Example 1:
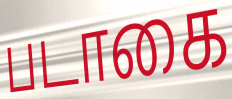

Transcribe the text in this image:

படாகை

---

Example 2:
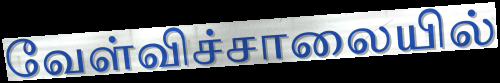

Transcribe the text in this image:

வேள்விச்சாலையில்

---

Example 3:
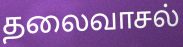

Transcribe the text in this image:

தலைவாசல்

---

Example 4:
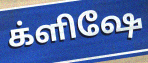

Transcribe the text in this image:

க்ளிஷே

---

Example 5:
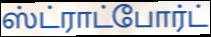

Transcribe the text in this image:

ஸ்ட்ராட்போர்ட்